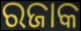
ରଜାକ